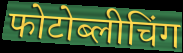
फोटोब्लीचिंग